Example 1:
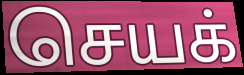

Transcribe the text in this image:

செயக்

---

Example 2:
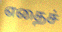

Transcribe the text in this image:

எதைச்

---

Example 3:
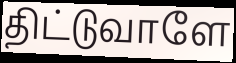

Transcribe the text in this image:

திட்டுவாளே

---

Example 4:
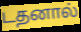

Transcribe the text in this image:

டதனால்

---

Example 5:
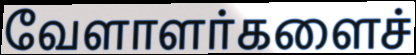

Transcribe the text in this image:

வேளாளர்களைச்